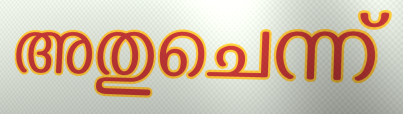
അതുചെന്ന്